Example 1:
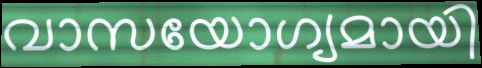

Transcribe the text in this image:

വാസയോഗ്യമായി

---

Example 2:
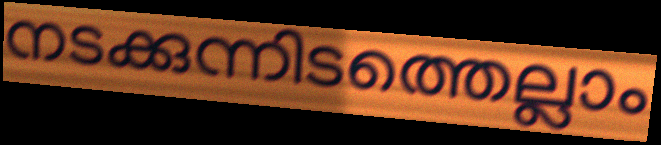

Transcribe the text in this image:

നടക്കുന്നിടത്തെല്ലാം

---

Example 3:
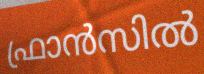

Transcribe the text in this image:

ഫ്രാൻസിൽ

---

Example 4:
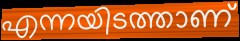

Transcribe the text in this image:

എന്നയിടത്താണ്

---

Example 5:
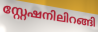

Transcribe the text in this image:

സ്റ്റേഷനിലിറങ്ങി